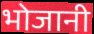
भोजानी